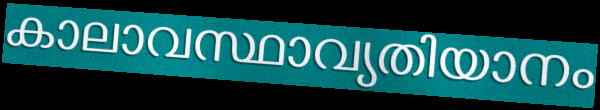
കാലാവസ്ഥാവ്യതിയാനം